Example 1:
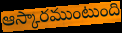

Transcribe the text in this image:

ఆస్కారముంటుంది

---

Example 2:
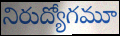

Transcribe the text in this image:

నిరుద్యోగమూ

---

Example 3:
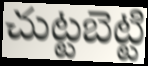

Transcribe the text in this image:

చుట్టబెట్టి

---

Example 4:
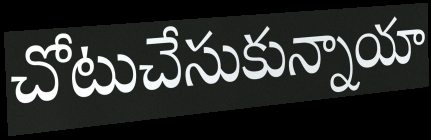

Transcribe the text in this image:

చోటుచేసుకున్నాయా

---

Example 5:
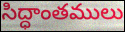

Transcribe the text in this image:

సిద్ధాంతములు